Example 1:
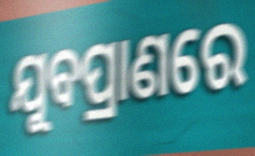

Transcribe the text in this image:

ଯୁବପ୍ରାଣରେ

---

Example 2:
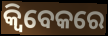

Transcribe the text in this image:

କ୍ୱିବେକରେ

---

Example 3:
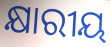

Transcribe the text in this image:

କ୍ଷାରୀୟ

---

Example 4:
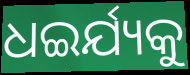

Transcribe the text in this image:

ଧଇର୍ଯ୍ୟକୁ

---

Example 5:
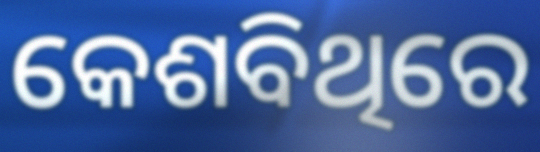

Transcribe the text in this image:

କେଶବିଥିରେ